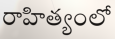
రాహిత్యంలో